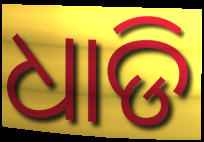
ଧାଡି